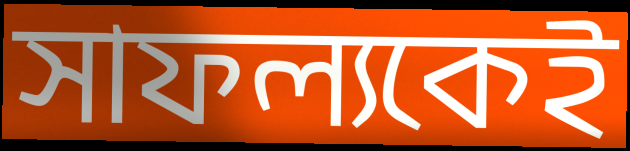
সাফল্যকেই